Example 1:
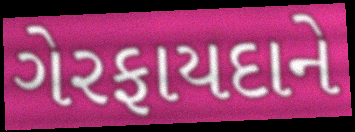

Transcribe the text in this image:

ગેરફાયદાને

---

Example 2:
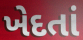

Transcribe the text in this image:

ખેદતાં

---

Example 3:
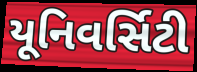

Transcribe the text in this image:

યૂનિવર્સિટી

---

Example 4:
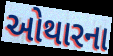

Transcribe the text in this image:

ઓથારના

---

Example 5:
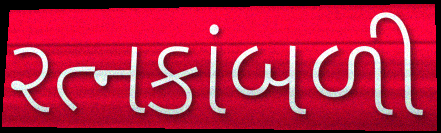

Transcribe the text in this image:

રત્નકાંબળી